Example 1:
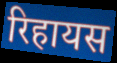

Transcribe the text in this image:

रिहायस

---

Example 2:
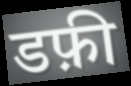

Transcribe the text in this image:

डफ़ी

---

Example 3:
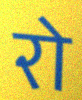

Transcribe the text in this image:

रो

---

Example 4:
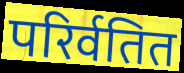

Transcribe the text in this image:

परिर्वतित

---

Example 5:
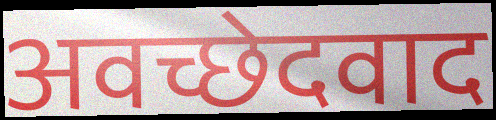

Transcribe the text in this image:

अवच्छेदवाद